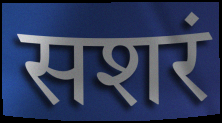
सशरं